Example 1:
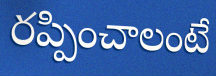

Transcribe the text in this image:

రప్పించాలంటే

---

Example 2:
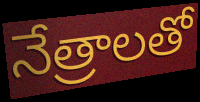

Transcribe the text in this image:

నేత్రాలతో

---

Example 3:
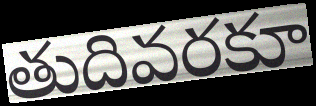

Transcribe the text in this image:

తుదివరకూ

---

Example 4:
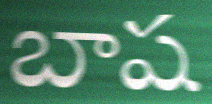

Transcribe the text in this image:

బాష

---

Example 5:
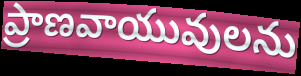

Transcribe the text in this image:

ప్రాణవాయువులను